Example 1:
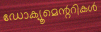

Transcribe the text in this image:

ഡോക്യൂമെന്ററികൾ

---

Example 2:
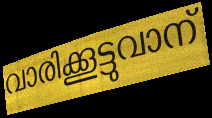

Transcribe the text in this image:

വാരിക്കൂട്ടുവാന്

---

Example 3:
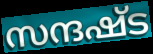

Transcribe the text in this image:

സന്ദഷ്ട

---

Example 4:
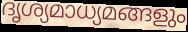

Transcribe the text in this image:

ദൃശ്യമാധ്യമങ്ങളും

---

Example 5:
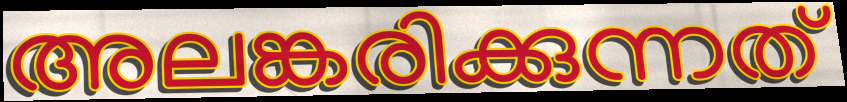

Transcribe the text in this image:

അലങ്കരിക്കുന്നത്